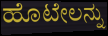
ಹೊಟೇಲನ್ನು